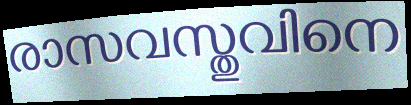
രാസവസ്തുവിനെ